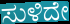
ಸುಳಿದೇ